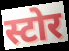
स्टोर